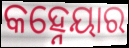
କହ୍ନେୟାର